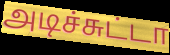
அடிச்சுட்டா